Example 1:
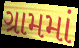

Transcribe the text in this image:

ગ્રામમાં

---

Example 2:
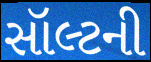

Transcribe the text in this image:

સૉલ્ટની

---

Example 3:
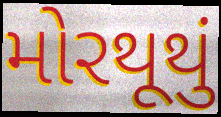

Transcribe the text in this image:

મોરથૂથું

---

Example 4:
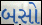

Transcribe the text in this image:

બસો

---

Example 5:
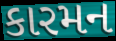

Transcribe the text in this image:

કારમન